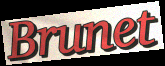
Brunet